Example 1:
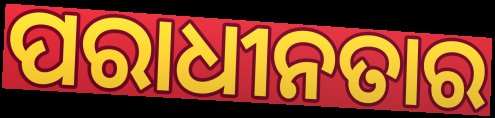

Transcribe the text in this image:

ପରାଧୀନତାର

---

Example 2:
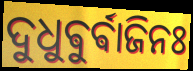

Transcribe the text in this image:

ଦୁଧୁଵୁର୍ଵାଜିନଃ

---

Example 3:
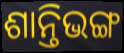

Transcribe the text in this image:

ଶାନ୍ତିଭଙ୍ଗ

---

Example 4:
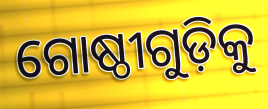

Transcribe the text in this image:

ଗୋଷ୍ଠୀଗୁଡ଼ିକୁ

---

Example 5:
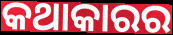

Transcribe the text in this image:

କଥାକାରର